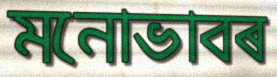
মনোভাবৰ